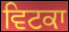
ਵਿਟਕਾ